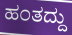
ಹಂತದ್ದು